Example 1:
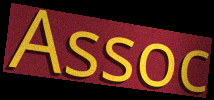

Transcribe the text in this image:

Assoc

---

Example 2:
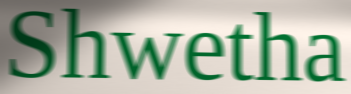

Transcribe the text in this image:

Shwetha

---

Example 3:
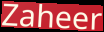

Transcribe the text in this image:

Zaheer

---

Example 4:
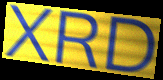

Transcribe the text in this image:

XRD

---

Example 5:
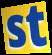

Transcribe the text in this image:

st